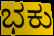
ಭಕು